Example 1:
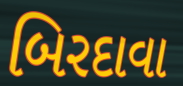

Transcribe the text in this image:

બિરદાવા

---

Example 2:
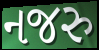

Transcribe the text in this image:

નજરુ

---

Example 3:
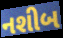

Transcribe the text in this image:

નશીબ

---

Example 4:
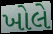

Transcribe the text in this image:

ખોલે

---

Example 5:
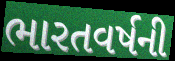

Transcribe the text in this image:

ભારતવર્ષની